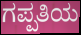
ಗಪ್ಪತಿಯ